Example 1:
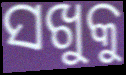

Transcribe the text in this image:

ସଖୁକୁ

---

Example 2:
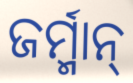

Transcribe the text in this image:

ଜର୍ମ୍ମାନ୍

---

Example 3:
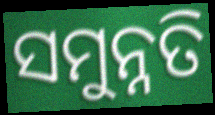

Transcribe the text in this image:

ସମୁନ୍ନତି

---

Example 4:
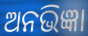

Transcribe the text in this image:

ଅନଭିଜ୍ଞା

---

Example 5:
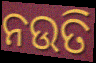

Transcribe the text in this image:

ନଉତି